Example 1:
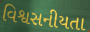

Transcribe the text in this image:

વિશ્વસનીયતા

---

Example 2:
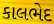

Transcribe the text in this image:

કાલભેદ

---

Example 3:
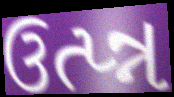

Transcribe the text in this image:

ઉત્પ્ન્ન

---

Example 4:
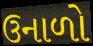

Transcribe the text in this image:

ઉનાળો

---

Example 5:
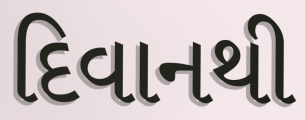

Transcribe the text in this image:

દિવાનથી